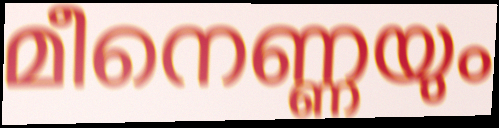
മീനെണ്ണയും